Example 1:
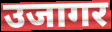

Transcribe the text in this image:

उजागर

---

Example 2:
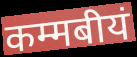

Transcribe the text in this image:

कम्मबीयं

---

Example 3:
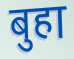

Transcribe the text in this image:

बुहा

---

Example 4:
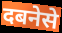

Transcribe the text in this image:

दबनेसे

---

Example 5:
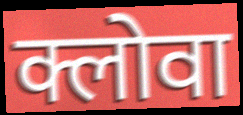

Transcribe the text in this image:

क्लोवा